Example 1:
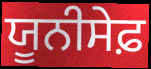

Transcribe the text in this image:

ਯੂਨੀਸੇਫ਼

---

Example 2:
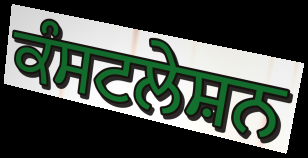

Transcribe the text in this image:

ਕੰਸਟਲੇਸ਼ਨ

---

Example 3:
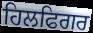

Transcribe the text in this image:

ਹਿਲਫਿਗਰ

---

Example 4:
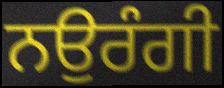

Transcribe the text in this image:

ਨਉਰੰਗੀ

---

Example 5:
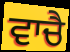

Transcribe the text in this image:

ਵਾਚੈ